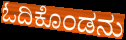
ಓದಿಕೊಂಡನು